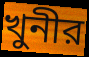
খুনীর